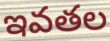
ఇవతల